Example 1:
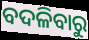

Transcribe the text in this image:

ବଦଳିବାରୁ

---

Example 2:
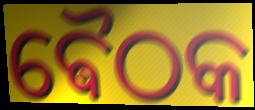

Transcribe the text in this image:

ଵୈଠକ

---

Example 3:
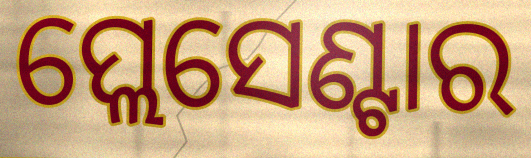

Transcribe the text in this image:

ପ୍ଲେସେଣ୍ଟାର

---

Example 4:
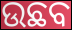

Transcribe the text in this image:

ଉଛବ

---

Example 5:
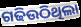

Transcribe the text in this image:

ଗଢିଉଠିଥିଲା